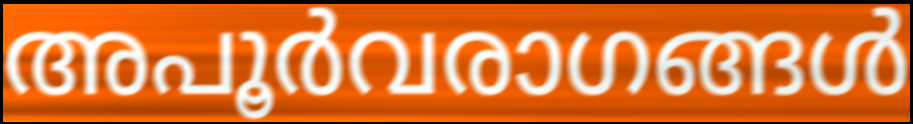
അപൂർവരാഗങ്ങൾ